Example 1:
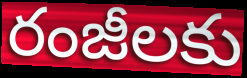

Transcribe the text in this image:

రంజీలకు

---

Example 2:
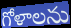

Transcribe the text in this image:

గోళాలను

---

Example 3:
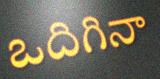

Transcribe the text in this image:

ఒదిగినా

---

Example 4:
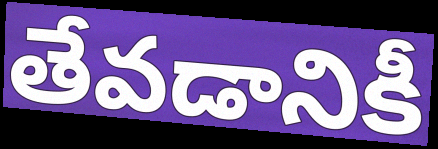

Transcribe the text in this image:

తేవడానికీ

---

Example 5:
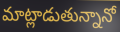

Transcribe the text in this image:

మాట్లాడుతున్నానో